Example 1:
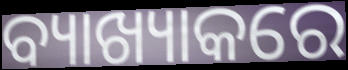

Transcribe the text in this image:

ବ୍ୟାଖ୍ୟାକରେ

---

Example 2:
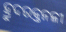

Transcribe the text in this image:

ହ୍ରୁଦରକ୍ତନଳୀ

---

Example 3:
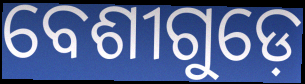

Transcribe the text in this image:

ବେଶୀଗୁଡ଼େ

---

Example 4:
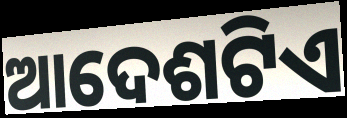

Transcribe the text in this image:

ଆଦେଶଟିଏ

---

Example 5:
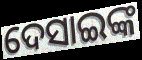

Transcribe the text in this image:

ଦେସାଇଙ୍କ